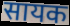
सायक